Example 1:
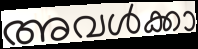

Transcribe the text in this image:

അവൾക്കാ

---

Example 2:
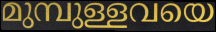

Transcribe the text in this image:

മുമ്പുള്ളവയെ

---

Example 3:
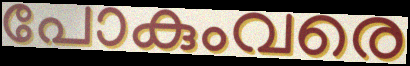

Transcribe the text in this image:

പോകുംവരെ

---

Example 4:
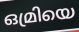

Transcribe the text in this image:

ഒമ്രിയെ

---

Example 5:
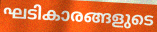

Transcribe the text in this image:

ഘടികാരങ്ങളുടെ